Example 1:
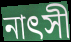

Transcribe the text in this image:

নাৎসী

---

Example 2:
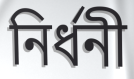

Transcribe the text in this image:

নির্ধনী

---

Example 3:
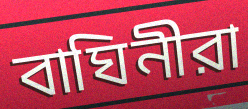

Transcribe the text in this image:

বাঘিনীরা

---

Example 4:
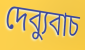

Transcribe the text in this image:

দেব্যুবাচ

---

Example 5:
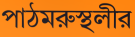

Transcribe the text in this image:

পাঠমরুস্থলীর